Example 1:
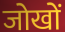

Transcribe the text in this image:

जोखों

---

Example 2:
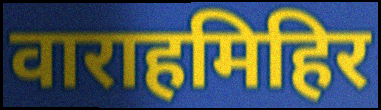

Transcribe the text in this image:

वाराहमिहिर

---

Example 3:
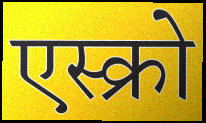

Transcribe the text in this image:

एस्क्रो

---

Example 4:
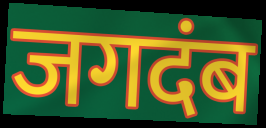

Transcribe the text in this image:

जगदंब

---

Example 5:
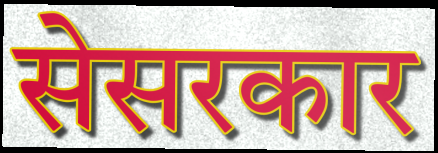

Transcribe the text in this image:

सेसरकार